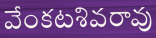
వేంకటశివరావు